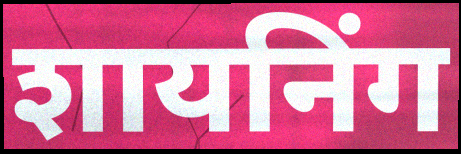
शायनिंग